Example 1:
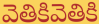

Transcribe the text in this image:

వెతికివెతికి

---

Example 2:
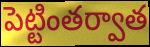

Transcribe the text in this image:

పెట్టింతర్వాత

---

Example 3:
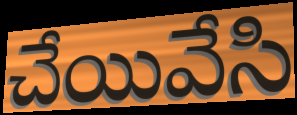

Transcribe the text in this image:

చేయివేసి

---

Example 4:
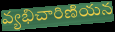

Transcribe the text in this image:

వ్యభిచారిణియన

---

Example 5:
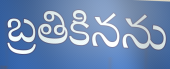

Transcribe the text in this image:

బ్రతికినను